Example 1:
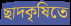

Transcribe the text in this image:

ছাদকৃষিতে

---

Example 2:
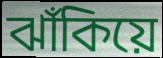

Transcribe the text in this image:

ঝাঁকিয়ে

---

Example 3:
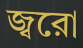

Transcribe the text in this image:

জ্বরো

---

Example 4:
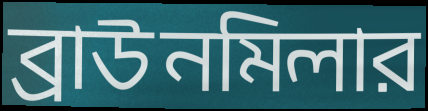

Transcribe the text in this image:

ব্রাউনমিলার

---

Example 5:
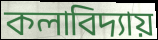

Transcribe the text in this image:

কলাবিদ্যায়